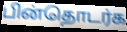
பின்தொடர்க